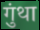
गुंथा